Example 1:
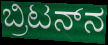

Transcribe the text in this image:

ಬ್ರಿಟನ್‌ನ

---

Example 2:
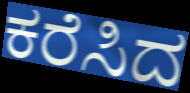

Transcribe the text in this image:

ಕರೆಸಿದ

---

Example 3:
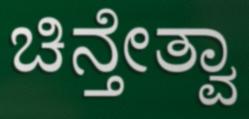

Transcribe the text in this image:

ಚಿನ್ತೇತ್ವಾ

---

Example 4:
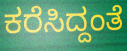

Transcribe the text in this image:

ಕರೆಸಿದ್ದಂತೆ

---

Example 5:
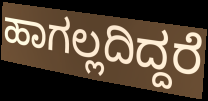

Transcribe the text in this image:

ಹಾಗಲ್ಲದಿದ್ದರೆ